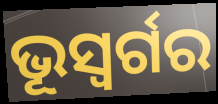
ଭୂସ୍ବର୍ଗର